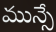
మున్సే